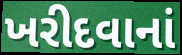
ખરીદવાનાં